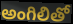
అంగిలితో